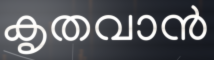
കൃതവാൻ